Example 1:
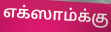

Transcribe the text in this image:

எக்ஸாம்க்கு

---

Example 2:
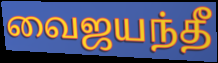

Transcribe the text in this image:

வைஜயந்தீ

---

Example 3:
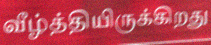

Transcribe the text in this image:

வீழ்த்தியிருக்கிறது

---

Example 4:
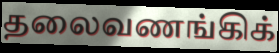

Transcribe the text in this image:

தலைவணங்கிக்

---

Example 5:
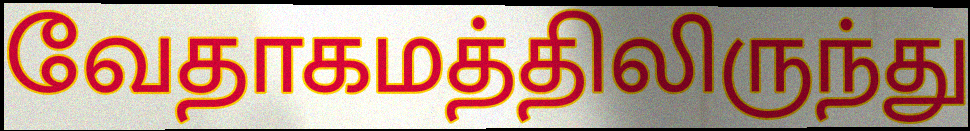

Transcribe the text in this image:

வேதாகமத்திலிருந்து